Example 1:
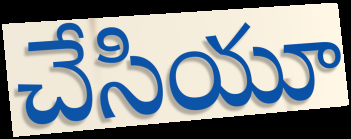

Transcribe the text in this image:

చేసియూ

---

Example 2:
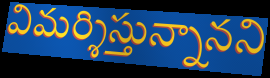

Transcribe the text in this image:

విమర్శిస్తున్నానని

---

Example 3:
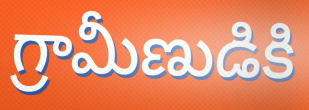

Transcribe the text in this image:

గ్రామీణుడికి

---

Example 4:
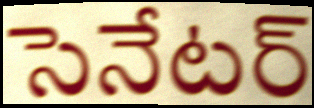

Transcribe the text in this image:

సెనేటర్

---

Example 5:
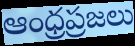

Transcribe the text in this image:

ఆంధ్రప్రజలు